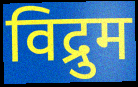
विद्रुम